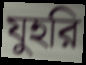
যুহরি